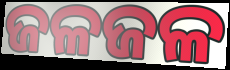
ଜଳଜଳ